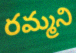
రమ్మని